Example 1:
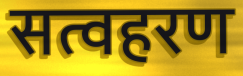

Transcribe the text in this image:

सत्वहरण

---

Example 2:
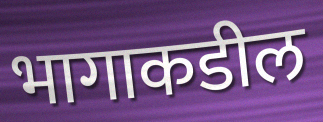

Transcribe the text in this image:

भागाकडील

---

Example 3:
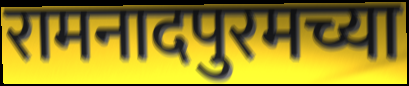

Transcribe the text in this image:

रामनादपुरमच्या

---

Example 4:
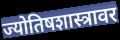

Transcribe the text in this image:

ज्योतिषशास्त्रावर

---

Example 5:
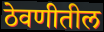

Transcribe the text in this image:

ठेवणीतील